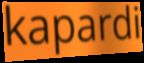
kapardi